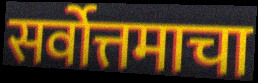
सर्वोत्तमाचा